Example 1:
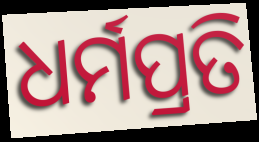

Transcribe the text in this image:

ଧର୍ମପ୍ରତି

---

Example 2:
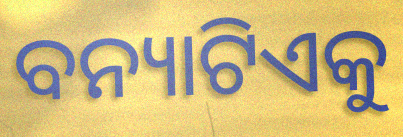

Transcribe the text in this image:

ବନ୍ୟାଟିଏକୁ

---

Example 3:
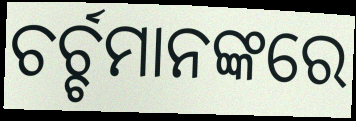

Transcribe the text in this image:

ଚର୍ଚ୍ଚମାନଙ୍କରେ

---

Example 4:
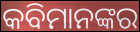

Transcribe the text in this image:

କବିମାନଙ୍କର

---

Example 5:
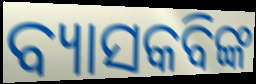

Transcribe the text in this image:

ବ୍ୟାସକବିଙ୍କ